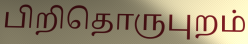
பிறிதொருபுறம்